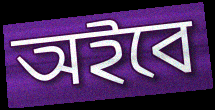
অইবে